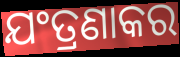
ଯଂତ୍ରଣାକର